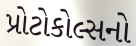
પ્રોટોકોલ્સનો